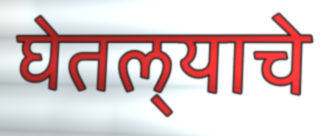
घेतल्याचे